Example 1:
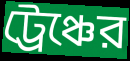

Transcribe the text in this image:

ট্রেঞ্চের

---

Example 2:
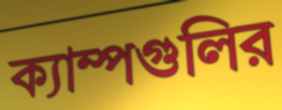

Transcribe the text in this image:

ক্যাম্পগুলির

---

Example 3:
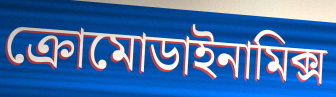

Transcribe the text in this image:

ক্রোমোডাইনামিক্স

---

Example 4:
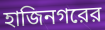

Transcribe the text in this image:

হাজিনগরের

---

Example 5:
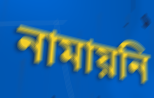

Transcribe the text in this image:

নামায়নি